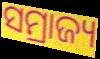
ସମ୍ରାଜ୍ୟ